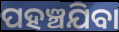
ପହଞ୍ଚଯିବା